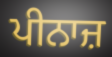
ਪੀਨਾਜ਼